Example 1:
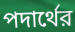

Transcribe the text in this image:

পদার্থের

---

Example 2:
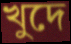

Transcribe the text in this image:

খুদে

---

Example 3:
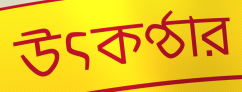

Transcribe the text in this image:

উৎকণ্ঠার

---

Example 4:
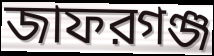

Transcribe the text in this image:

জাফরগঞ্জ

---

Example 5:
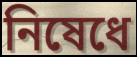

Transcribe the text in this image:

নিষেধে